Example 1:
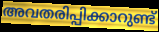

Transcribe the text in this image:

അവതരിപ്പിക്കാറുണ്ട്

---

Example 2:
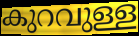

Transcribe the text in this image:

കുറവുള്ള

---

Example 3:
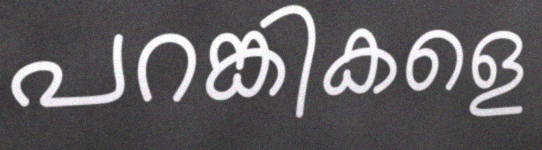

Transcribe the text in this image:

പറങ്കികളെ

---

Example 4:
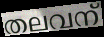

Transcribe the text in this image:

തലവന്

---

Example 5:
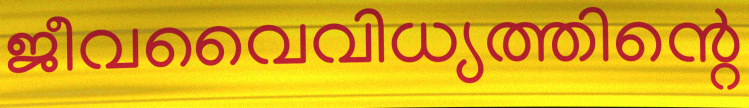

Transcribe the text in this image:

ജീവവൈവിധ്യത്തിന്റെ